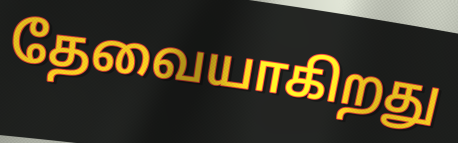
தேவையாகிறது